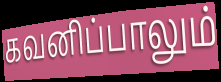
கவனிப்பாலும்